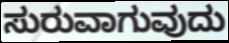
ಸುರುವಾಗುವುದು